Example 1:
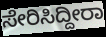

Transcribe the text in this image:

ಸೇರಿಸಿದ್ದೀರಾ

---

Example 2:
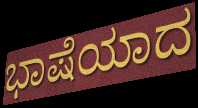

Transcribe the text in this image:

ಭಾಷೆಯಾದ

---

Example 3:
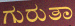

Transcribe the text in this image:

ಗುರುತಾ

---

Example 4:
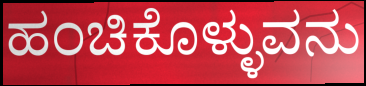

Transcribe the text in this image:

ಹಂಚಿಕೊಳ್ಳುವನು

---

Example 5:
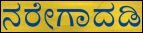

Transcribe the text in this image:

ನರೇಗಾದಡಿ